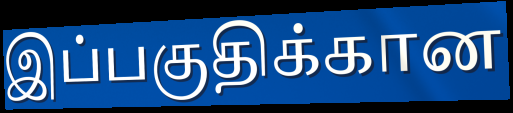
இப்பகுதிக்கான